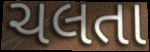
ચલતા